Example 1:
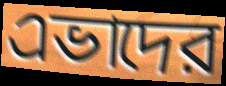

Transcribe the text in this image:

এভাদের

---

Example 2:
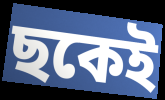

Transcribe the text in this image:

ছকেই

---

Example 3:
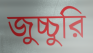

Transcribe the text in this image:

জুচ্চুরি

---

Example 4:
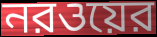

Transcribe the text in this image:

নরওয়ের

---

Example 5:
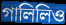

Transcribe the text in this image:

গালিলিও